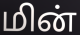
மின்